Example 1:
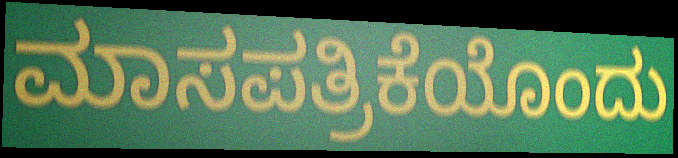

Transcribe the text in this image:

ಮಾಸಪತ್ರಿಕೆಯೊಂದು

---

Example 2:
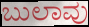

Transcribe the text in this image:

ಬುಲಾವು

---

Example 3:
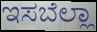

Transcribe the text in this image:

ಇಸಬೆಲ್ಲಾ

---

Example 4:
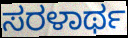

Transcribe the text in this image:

ಸರಳಾರ್ಥ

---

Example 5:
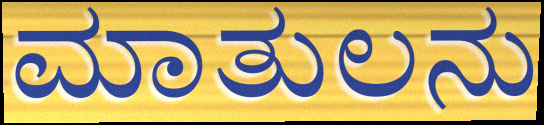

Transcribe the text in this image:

ಮಾತುಲನು